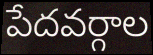
పేదవర్గాల